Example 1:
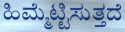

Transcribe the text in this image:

ಹಿಮ್ಮೆಟ್ಟಿಸುತ್ತದೆ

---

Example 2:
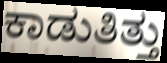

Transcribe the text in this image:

ಕಾಡುತಿತ್ತು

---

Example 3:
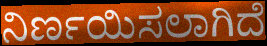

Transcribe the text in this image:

ನಿರ್ಣಯಿಸಲಾಗಿದೆ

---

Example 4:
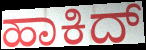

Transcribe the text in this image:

ಹಾಕಿದ್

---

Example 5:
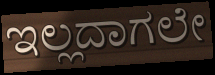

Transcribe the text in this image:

ಇಲ್ಲದಾಗಲೇ